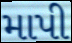
માપી